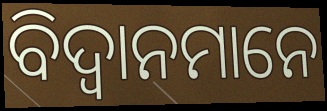
ବିଦ୍ଵାନମାନେ